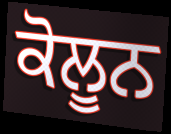
ਕੋਲੂਨ